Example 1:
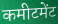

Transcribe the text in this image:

कमीटमेंट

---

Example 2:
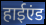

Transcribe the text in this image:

हाईएंड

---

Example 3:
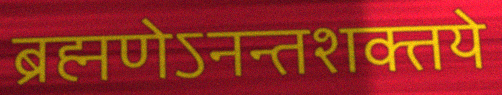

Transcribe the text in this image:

ब्रह्मणेऽनन्तशक्तये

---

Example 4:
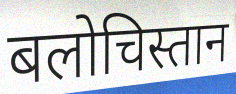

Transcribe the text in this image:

बलोचिस्तान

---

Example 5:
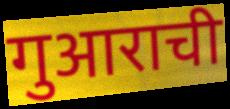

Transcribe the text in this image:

गुआराची